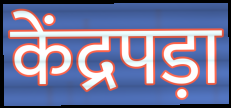
केंद्रपड़ा